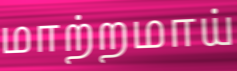
மாற்றமாய்